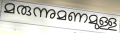
മരുന്നുമണമുള്ള